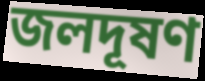
জলদূষণ